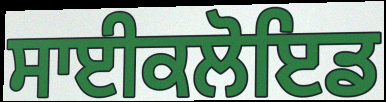
ਸਾਈਕਲੋਇਡ